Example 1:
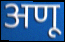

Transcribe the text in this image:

अणू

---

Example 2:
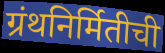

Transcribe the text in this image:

ग्रंथनिर्मितीची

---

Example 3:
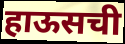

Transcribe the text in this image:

हाऊसची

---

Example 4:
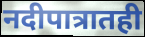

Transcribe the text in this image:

नदीपात्रातही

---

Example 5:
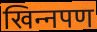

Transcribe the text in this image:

खिन्नपण